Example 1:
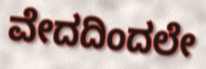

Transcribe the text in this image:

ವೇದದಿಂದಲೇ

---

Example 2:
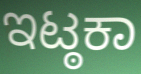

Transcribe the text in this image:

ಇಟ್ಠಕಾ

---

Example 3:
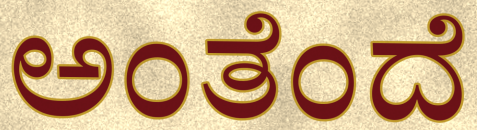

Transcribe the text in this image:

ಅಂತೆಂದೆ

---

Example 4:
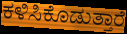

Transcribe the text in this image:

ಕಳಿಸಿಕೊಡುತ್ತಾರೆ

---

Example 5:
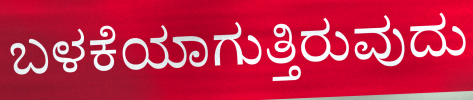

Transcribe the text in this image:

ಬಳಕೆಯಾಗುತ್ತಿರುವುದು